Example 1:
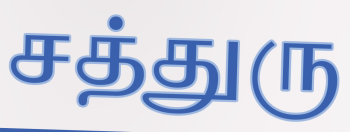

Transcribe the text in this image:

சத்துரு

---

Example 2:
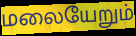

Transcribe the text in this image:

மலையேறும்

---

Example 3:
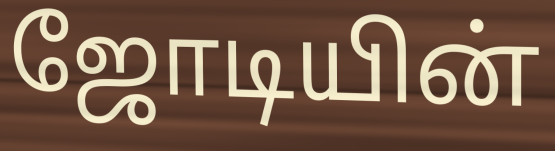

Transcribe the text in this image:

ஜோடியின்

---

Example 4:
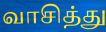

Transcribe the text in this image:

வாசித்து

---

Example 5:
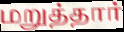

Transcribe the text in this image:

மறுத்தார்